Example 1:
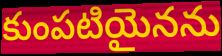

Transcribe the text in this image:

కుంపటియైనను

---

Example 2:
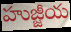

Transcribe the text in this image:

హుజ్జీయ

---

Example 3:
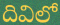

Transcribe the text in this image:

దివిలో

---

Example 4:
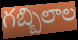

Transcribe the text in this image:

గబ్బిలాల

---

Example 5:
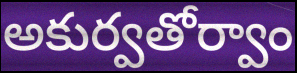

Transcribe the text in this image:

అకుర్వతోర్వాం